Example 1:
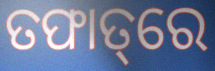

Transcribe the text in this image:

ତଫାତ୍‌ରେ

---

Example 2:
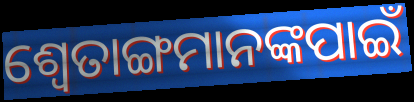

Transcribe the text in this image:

ଶ୍ୱେତାଙ୍ଗମାନଙ୍କପାଇଁ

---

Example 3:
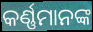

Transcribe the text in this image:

କର୍ଣ୍ଣମାନଙ୍କ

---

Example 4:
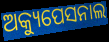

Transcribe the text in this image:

ଅକ୍ୟୁପେସନାଲ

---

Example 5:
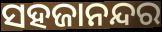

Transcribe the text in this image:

ସହଜାନନ୍ଦର